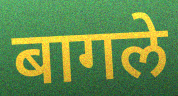
बागले